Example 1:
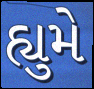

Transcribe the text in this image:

હ્યુમે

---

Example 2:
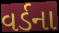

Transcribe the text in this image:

વર્ડના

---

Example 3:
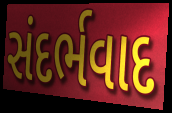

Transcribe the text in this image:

સંદર્ભવાદ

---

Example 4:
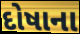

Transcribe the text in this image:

દોષાના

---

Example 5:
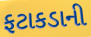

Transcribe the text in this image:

ફટાકડાની